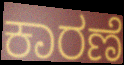
ಕಾರಣೆ